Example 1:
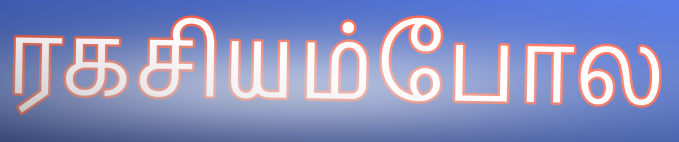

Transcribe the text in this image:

ரகசியம்போல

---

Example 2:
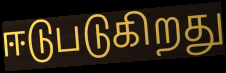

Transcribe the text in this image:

ஈடுபடுகிறது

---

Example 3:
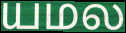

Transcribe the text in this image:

யமல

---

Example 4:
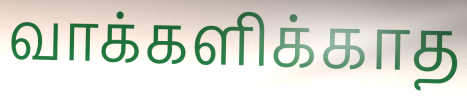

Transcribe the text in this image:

வாக்களிக்காத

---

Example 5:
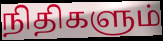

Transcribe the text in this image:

நிதிகளும்